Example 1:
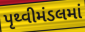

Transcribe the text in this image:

પૃથ્વીમંડલમાં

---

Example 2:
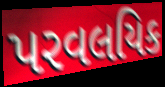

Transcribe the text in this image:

પરવલયિક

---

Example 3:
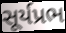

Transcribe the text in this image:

સૂર્યપ્રભ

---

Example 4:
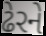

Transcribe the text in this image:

ઢેરને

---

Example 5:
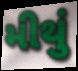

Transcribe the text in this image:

મીથું